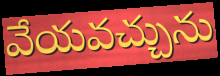
వేయవచ్చును